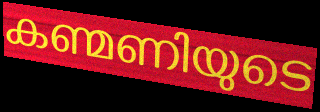
കണ്മണിയുടെ